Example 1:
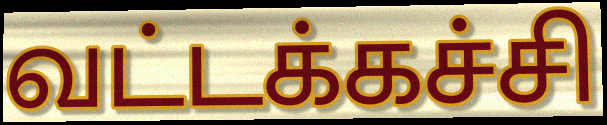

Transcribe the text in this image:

வட்டக்கச்சி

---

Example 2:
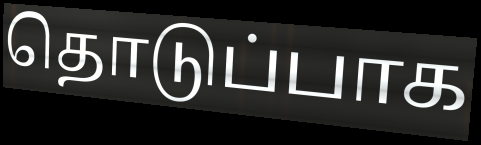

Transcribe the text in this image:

தொடுப்பாக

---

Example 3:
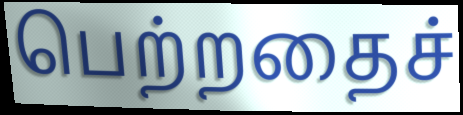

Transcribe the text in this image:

பெற்றதைச்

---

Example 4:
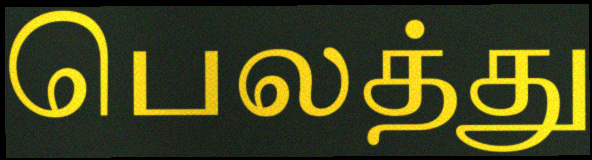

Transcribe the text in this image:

பெலத்து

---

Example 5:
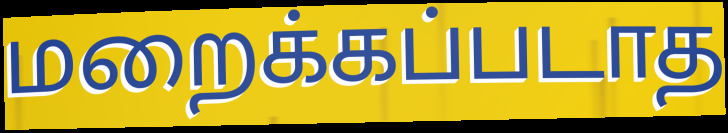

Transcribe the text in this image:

மறைக்கப்படாத